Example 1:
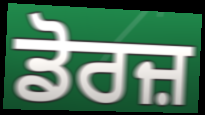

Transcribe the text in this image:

ਡੋਰਜ਼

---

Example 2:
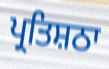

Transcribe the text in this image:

ਪ੍ਰਤਿਸ਼ਠਾ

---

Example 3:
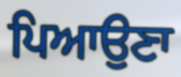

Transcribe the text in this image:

ਪਿਆਉਣਾ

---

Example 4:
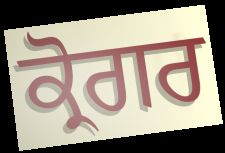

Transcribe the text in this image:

ਕ੍ਰੋਗਰ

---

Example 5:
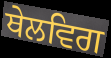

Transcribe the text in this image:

ਥੇਲਵਿਗ